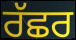
ਰੱਛਰ